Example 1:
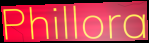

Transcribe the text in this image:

Phillora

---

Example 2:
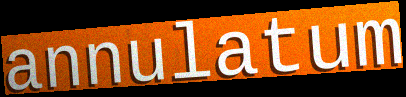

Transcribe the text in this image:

annulatum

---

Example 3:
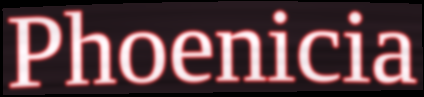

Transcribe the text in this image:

Phoenicia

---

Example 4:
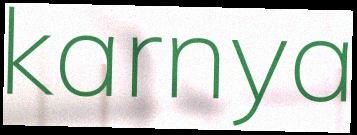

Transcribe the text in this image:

karnya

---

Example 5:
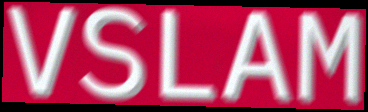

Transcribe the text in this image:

VSLAM